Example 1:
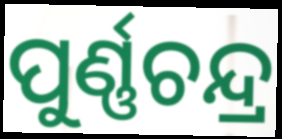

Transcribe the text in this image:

ପୁର୍ଣ୍ଣଚନ୍ଦ୍ର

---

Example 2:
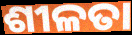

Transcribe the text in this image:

ଶୀଳତା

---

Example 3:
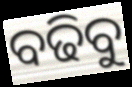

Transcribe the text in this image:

ବଢିବୁ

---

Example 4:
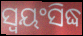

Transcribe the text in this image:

ସ୍ୱୟଂସିଦ୍ଧ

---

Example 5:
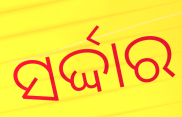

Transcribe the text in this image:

ସର୍ଦ୍ଦାର